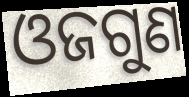
ଓଜଗୁଣ